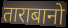
ताराबानो